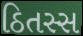
ઠિતસ્સ